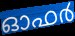
ഓഫർ